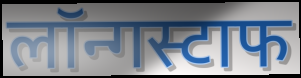
लॉन्गस्टाफ